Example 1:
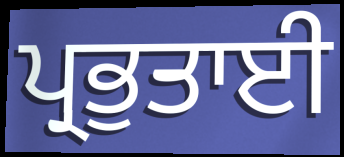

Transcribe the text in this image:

ਪ੍ਰਭੁਤਾਈ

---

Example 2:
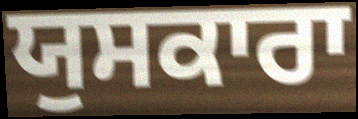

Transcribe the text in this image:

ਯੁਸਕਾਰਾ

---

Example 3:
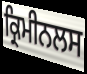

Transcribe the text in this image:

ਕ੍ਰਿਮੀਨਲਸ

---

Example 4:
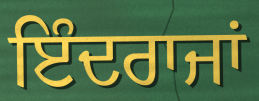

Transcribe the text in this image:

ਇੰਦਰਾਜਾਂ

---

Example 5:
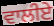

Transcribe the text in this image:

ਵਾਲੀਏ